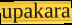
upakara